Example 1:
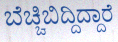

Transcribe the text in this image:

ಬೆಚ್ಚಿಬಿದ್ದಿದ್ದಾರೆ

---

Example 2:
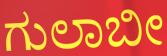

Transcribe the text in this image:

ಗುಲಾಬೀ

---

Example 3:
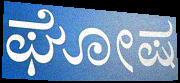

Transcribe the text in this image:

ಘೋಷ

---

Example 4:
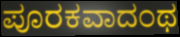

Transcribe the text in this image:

ಪೂರಕವಾದಂಥ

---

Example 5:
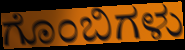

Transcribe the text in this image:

ಗೊಂಬಿಗಳು